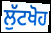
ਲੁੱਟਖੋਹ